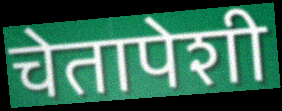
चेतापेशी